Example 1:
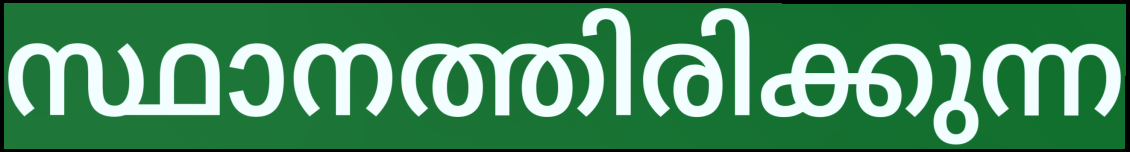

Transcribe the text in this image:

സ്ഥാനത്തിരിക്കുന്ന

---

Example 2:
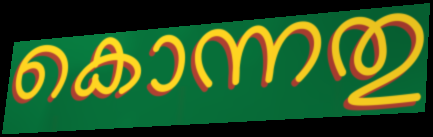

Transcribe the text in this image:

കൊന്നതു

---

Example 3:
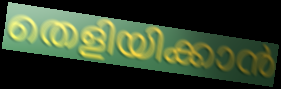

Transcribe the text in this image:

തെളിയിക്കാൻ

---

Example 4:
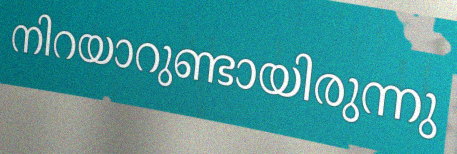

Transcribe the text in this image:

നിറയാറുണ്ടായിരുന്നു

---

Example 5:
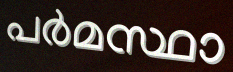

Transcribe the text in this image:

പർമസ്ഥാ